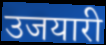
उजयारी